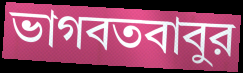
ভাগবতবাবুর